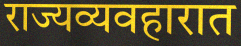
राज्यव्यवहारात